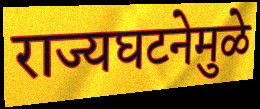
राज्यघटनेमुळे